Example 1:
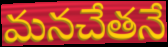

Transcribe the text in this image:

మనచేతనే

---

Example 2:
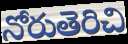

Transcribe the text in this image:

నోరుతెరిచి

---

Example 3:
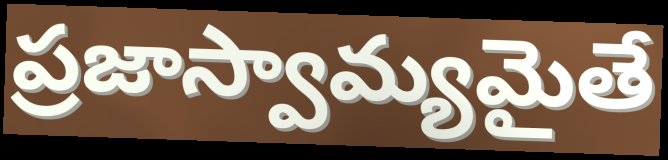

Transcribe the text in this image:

ప్రజాస్వామ్యమైతే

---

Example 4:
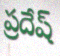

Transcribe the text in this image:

ప్రదేష్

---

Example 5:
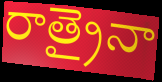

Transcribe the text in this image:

రాత్రైనా